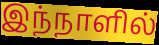
இந்நாளில்